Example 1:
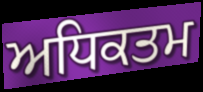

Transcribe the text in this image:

ਅਧਿਕਤਮ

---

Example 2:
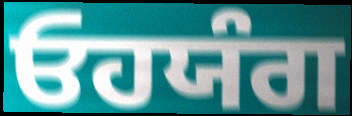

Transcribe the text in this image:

ਓਹਯੰਗ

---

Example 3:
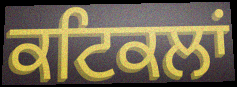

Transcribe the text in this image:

ਕਟਿਕਲਾਂ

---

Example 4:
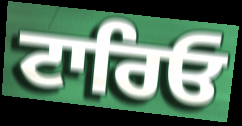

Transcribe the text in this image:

ਟਾਰਿਓ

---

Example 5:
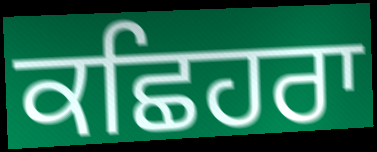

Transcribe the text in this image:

ਕਛਿਹਰਾ